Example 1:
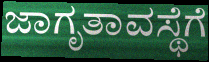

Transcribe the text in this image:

ಜಾಗೃತಾವಸ್ಥೆಗೆ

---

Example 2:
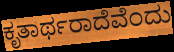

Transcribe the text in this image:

ಕೃತಾರ್ಥರಾದೆವೆಂದು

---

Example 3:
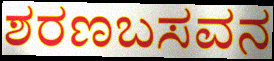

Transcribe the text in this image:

ಶರಣಬಸವನ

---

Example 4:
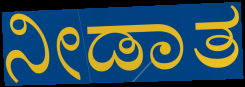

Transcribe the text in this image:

ನೀಡಾತ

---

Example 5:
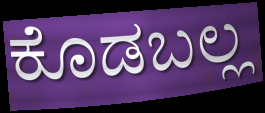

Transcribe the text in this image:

ಕೊಡಬಲ್ಲ